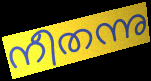
നീതന്നു